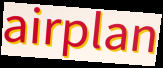
airplan